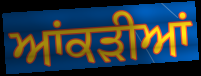
ਆਂਕੜੀਆਂ